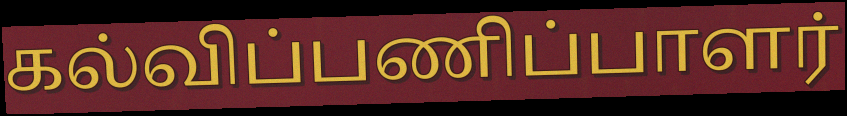
கல்விப்பணிப்பாளர்